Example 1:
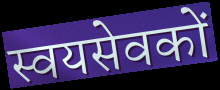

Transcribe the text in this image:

स्वयसेवकों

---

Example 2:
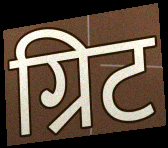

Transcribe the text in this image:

ग्रिट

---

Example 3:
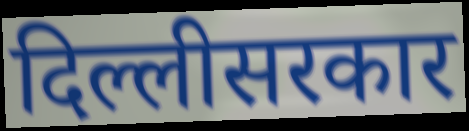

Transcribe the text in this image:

दिल्लीसरकार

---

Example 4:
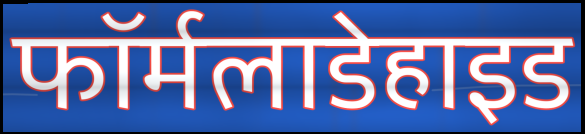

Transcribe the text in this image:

फॉर्मलाडेहाइड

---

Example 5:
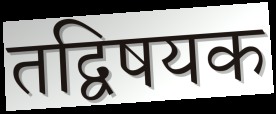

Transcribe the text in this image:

तद्विषयक